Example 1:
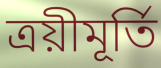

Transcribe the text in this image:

ত্ৰয়ীমূৰ্তি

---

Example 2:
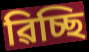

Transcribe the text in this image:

ৱিচ্ছি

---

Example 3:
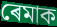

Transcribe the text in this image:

ৰেমাক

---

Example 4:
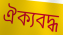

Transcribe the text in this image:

ঐক্যবদ্ধ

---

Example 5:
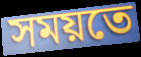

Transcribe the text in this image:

সময়তে